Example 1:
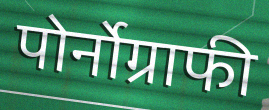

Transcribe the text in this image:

पोर्नोग्राफी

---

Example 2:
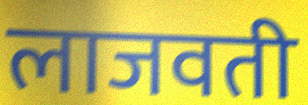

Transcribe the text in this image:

लाजवती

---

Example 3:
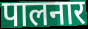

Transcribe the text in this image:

पालनार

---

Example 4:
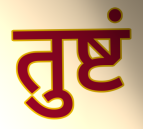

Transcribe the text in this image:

तुष्टं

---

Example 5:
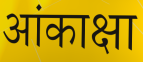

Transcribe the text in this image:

आंकाक्षा